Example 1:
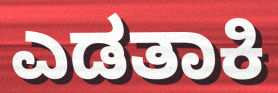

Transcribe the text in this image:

ಎಡತಾಕಿ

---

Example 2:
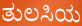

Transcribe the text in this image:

ತುಲಸಿಯ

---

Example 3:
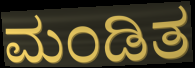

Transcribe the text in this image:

ಮಂಡಿತ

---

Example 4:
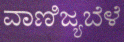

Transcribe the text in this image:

ವಾಣಿಜ್ಯಬೆಳೆ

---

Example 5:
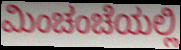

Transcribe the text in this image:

ಮಿಂಚಂಚೆಯಲ್ಲಿ